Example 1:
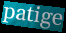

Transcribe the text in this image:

patige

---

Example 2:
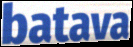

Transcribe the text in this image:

batava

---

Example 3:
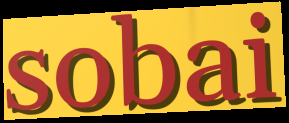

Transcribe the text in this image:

sobai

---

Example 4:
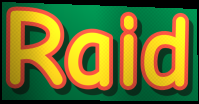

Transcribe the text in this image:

Raid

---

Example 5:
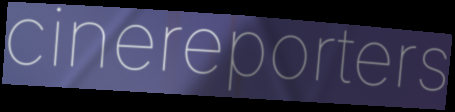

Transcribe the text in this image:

cinereporters